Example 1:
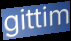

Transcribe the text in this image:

gittim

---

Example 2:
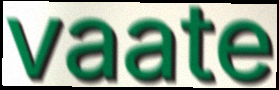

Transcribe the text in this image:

vaate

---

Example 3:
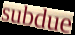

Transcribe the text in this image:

subdue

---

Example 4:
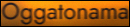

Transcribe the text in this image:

Oggatonama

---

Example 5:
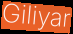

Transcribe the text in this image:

Giliyar